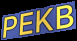
PEKB